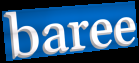
baree